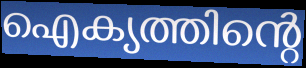
ഐക്യത്തിന്റെ